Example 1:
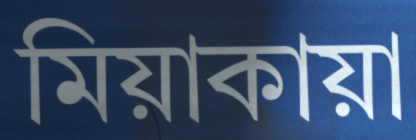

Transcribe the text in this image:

মিয়াকায়া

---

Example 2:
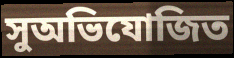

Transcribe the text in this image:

সুঅভিযোজিত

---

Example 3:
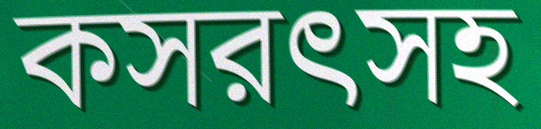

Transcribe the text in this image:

কসরৎসহ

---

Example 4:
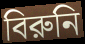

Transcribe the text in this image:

বিরুনি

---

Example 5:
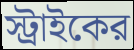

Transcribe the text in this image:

স্ট্রাইকের